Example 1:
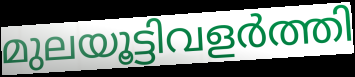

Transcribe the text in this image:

മുലയൂട്ടിവളർത്തി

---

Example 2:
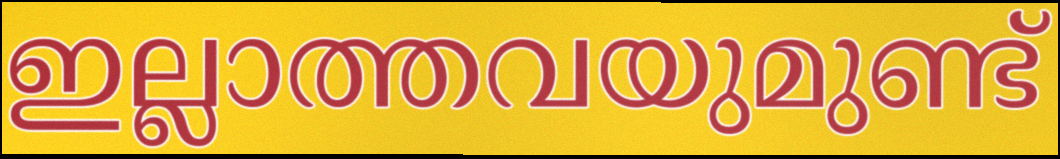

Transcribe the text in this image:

ഇല്ലാത്തവയുമുണ്ട്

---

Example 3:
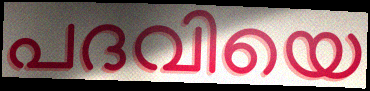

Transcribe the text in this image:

പദവിയെ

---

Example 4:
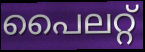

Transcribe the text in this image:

പൈലറ്റ്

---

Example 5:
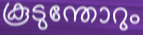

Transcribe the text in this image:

കൂടുന്തോറും